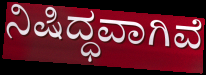
ನಿಷಿದ್ಧವಾಗಿವೆ